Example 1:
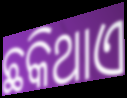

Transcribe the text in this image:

ଛକିଥାଏ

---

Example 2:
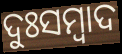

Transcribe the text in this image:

ଦୁଃସମ୍ବାଦ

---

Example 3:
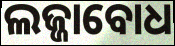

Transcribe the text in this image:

ଲଜ୍ଜାବୋଧ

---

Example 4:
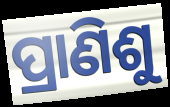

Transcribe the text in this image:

ପ୍ରାଣିଶୁ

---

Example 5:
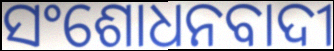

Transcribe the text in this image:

ସଂଶୋଧନବାଦୀ